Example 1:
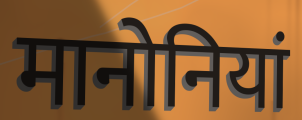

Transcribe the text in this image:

मानोनियां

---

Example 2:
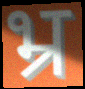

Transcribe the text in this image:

भ्र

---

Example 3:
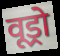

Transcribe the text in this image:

वूड्रो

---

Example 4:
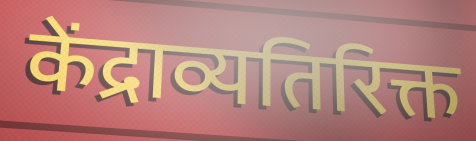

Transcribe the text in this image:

केंद्राव्यतिरिक्त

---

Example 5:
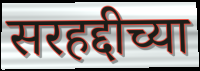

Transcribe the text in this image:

सरहद्दीच्या